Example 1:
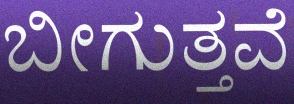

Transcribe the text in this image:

ಬೀಗುತ್ತವೆ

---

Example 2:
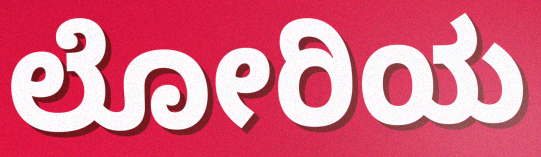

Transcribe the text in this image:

ಲೋರಿಯ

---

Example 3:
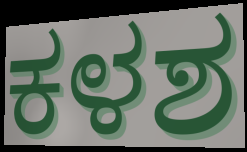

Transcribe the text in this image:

ಕಳಶ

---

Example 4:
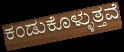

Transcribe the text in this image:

ಕಂಡುಕೊಳ್ಳುತ್ತವೆ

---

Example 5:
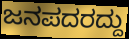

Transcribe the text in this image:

ಜನಪದರದ್ದು